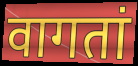
वागतां